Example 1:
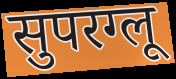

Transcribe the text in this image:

सुपरग्लू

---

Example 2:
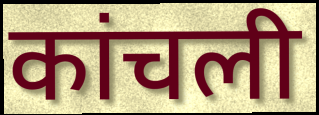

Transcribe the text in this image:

कांचली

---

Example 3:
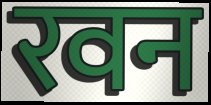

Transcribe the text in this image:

रवन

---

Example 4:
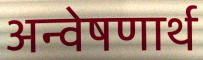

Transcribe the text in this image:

अन्वेषणार्थ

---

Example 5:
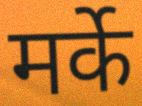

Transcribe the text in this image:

मर्के